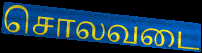
சொலவடை